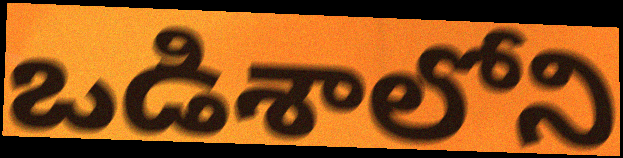
ఒడిశాలోని